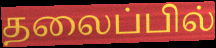
தலைப்பில்